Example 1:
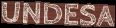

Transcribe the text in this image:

UNDESA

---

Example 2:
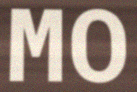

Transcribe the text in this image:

MO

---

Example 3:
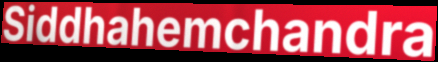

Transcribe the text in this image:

Siddhahemchandra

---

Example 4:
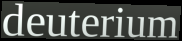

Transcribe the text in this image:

deuterium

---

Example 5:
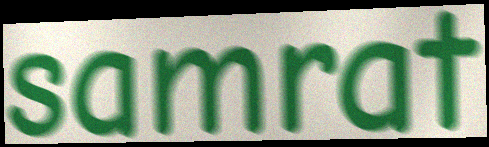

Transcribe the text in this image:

samrat